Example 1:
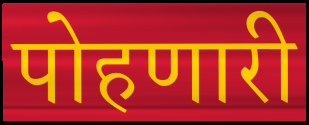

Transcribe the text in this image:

पोहणारी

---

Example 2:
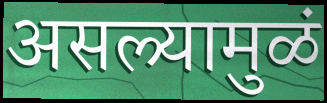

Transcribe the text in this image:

असल्यामुळं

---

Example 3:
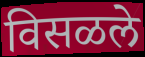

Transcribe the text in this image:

विसळले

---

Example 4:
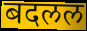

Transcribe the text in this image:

बदलल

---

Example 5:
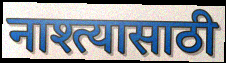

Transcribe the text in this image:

नाश्त्यासाठी